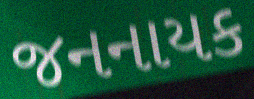
જનનાયક